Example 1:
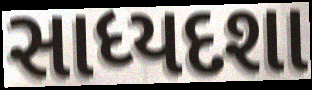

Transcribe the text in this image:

સાધ્યદશા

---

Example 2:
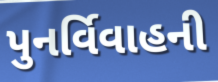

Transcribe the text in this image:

પુનર્વિવાહની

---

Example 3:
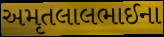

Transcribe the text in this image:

અમૃતલાલભાઈના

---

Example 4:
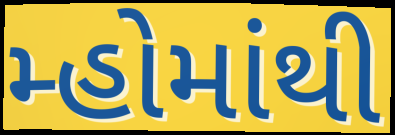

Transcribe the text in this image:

મ્હોમાંથી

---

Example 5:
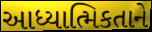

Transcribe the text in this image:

આધ્યાત્મિકતાને